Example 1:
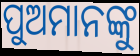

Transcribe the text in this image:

ପୁଅମାନଙ୍କୁ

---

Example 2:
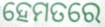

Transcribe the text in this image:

ହେମତରେ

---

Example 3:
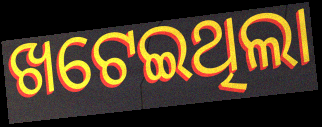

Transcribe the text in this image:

ଖଟେଇଥିଲା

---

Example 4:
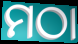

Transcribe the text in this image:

ମଠା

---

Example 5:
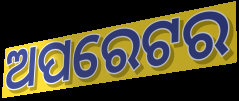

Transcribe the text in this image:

ଅପରେଟର